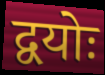
द्वयोः